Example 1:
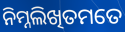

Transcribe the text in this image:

ନିମ୍ନଲିଖିତମତେ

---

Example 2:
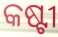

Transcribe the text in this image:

କଷ୍ଟୀ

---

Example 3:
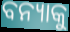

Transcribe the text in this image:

ବନ୍ୟାକୁ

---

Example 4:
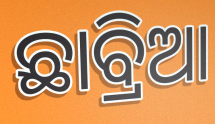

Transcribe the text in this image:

ଛାବ୍ରିଆ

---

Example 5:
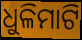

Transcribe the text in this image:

ଧୁଳିମାଟି